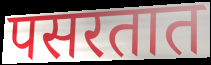
पसरतात